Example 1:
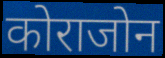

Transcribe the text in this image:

कोराजोन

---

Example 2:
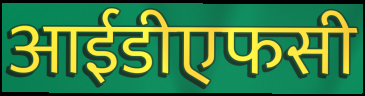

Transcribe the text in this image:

आईडीएफसी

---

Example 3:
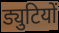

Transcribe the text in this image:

ड्युटियों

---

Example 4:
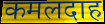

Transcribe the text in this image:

कमलदाह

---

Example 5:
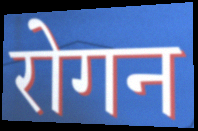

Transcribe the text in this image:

रोगन